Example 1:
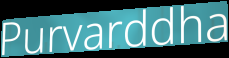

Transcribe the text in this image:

Purvarddha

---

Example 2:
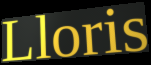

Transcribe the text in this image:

Lloris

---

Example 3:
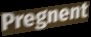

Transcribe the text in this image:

Pregnent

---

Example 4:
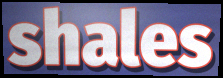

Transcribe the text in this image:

shales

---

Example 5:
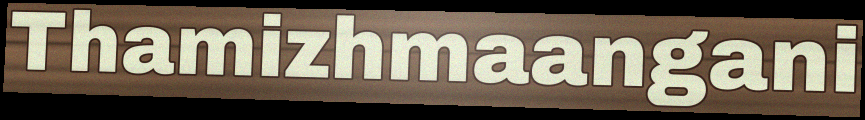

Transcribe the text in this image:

Thamizhmaangani